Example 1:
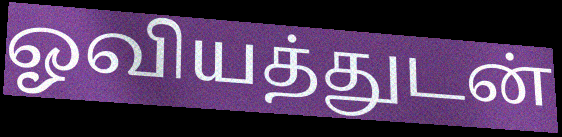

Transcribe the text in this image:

ஓவியத்துடன்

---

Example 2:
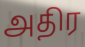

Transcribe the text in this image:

அதிர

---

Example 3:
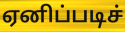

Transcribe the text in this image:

ஏனிப்படிச்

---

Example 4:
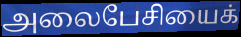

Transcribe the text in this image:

அலைபேசியைக்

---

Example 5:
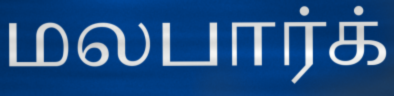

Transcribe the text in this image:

மலபார்க்